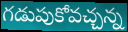
గడుపుకోవచ్చన్న